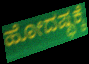
ಹೋದಷ್ಟಕ್ಕೆ